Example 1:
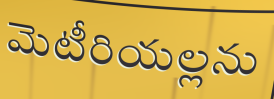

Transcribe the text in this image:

మెటీరియల్లను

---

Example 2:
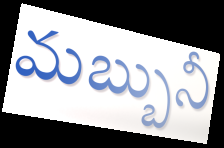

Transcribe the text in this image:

మబ్బునీ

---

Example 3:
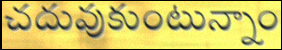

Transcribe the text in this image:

చదువుకుంటున్నాం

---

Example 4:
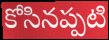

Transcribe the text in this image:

కోసినప్పటి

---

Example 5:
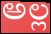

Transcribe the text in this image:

అల్ల